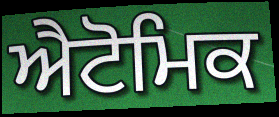
ਐਟੋਮਿਕ